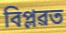
বিপ্লৱত